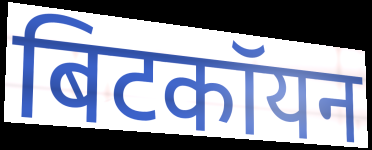
बिटकॉयन